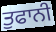
ਤੁਫਾਨੀ